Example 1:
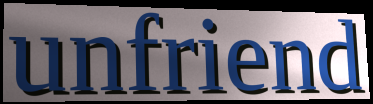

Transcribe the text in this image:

unfriend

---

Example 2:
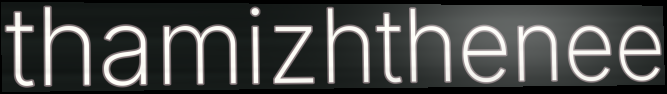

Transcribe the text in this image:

thamizhthenee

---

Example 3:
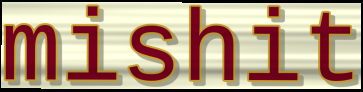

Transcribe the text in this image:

mishit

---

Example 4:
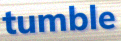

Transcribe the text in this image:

tumble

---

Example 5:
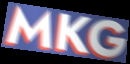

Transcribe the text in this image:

MKG